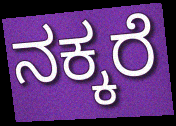
ನಕ್ಕರೆ